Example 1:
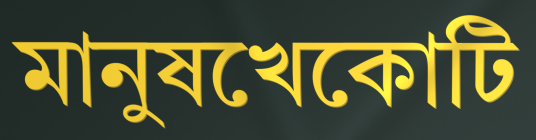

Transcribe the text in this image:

মানুষখেকোটি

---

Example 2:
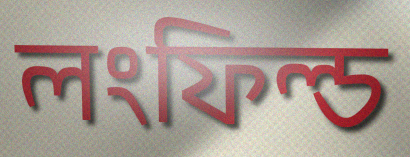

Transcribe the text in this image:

লংফিল্ড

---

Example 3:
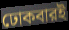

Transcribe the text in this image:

ঢোকবারই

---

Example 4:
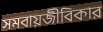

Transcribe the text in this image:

সমবায়জীবিকার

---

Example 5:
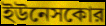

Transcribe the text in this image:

ইউনেসকোর